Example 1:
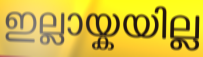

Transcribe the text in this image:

ഇല്ലായ്കയില്ല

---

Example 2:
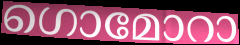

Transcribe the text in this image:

ഗൊമോറാ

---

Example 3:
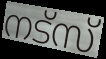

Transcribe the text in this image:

നട്സ്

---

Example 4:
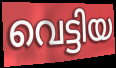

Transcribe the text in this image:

വെട്ടിയ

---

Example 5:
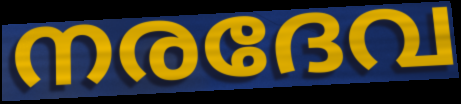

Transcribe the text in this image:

നരദേവ